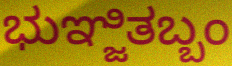
ಭುಞ್ಜಿತಬ್ಬಂ